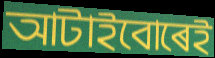
আটাইবোৰেই